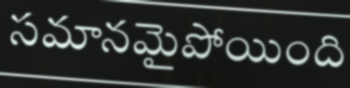
సమానమైపోయింది